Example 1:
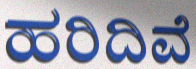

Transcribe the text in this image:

ಹರಿದಿವೆ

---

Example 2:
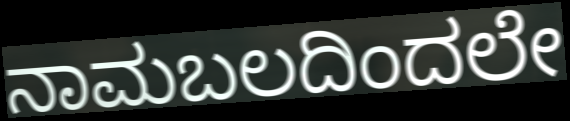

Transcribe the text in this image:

ನಾಮಬಲದಿಂದಲೇ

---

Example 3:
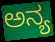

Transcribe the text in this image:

ಅನ್ಯ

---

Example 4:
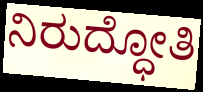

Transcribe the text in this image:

ನಿರುದ್ಧೋತಿ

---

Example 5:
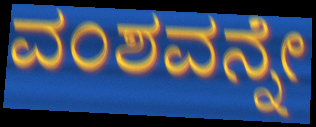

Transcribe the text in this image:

ವಂಶವನ್ನೇ